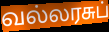
வல்லரசுப்